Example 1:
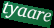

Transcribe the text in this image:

tyaare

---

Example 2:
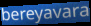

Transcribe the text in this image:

bereyavara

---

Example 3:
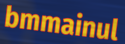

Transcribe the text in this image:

bmmainul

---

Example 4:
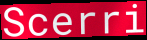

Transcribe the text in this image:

Scerri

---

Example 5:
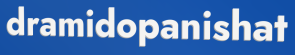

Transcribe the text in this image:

dramidopanishat